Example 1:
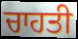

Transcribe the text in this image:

ਚਾਹਤੀ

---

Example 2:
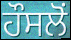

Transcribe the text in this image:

ਹੌਸਲੋਂ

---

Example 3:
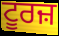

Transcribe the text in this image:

ਟੂਰਜ਼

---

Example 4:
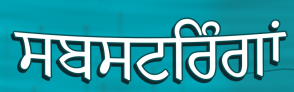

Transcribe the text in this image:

ਸਬਸਟਰਿੰਗਾਂ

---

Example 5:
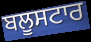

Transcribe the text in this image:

ਬਲੂਸਟਾਰ